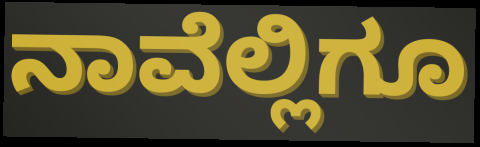
ನಾವೆಲ್ಲಿಗೂ